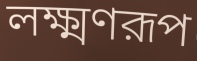
লক্ষ্মণরূপ